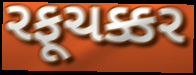
રફૂચક્કર